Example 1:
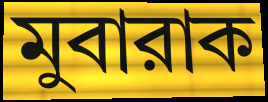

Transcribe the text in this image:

মুবারাক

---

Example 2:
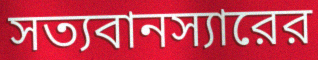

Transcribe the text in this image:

সত্যবানস্যারের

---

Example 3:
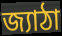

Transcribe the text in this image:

জ্যাঠা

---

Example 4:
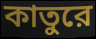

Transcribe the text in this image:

কাতুরে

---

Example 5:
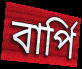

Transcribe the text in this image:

বার্পি